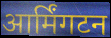
आर्मिंगटन